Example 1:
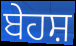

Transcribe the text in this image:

ਬੇਹਸ਼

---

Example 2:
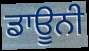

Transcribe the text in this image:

ਡਾਊਨੀ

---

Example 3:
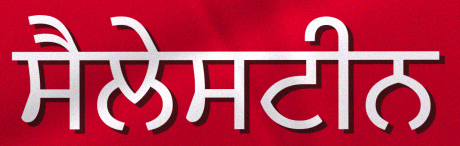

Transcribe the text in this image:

ਸੈਲੇਸਟੀਨ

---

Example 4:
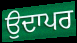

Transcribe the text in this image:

ਉਦਾਪਰ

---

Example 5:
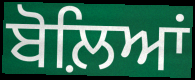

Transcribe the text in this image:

ਬੋਲ਼ਿਆਂ